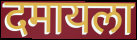
दमायला